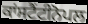
ਕਾਂਸਟੈਂਟੀਨੋਪਲ